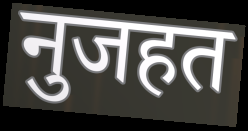
नुजहत